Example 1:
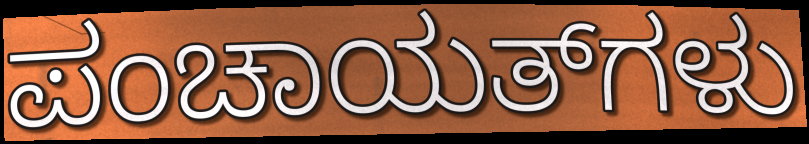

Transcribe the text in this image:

ಪಂಚಾಯತ್‌ಗಳು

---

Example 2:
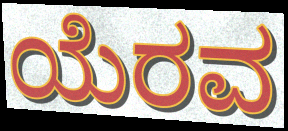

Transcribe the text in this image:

ಯೆರವ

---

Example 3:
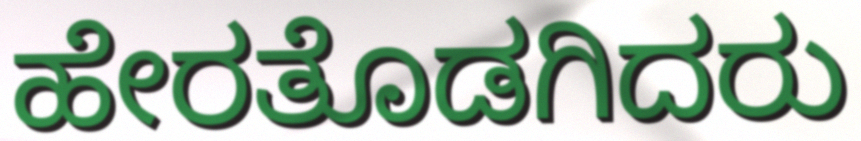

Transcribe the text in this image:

ಹೇರತೊಡಗಿದರು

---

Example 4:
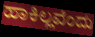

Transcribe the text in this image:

ಹಾಕಿಲ್ಲವೆಂದು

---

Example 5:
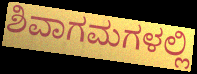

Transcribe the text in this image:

ಶಿವಾಗಮಗಳಲ್ಲಿ